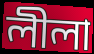
লীলা